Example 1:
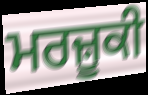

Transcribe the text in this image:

ਮਰਜ਼ੂਕੀ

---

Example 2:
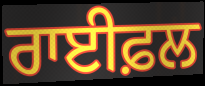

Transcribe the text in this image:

ਰਾਈਫ਼ਲ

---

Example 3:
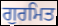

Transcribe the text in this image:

ਗੁਰਮਿਤ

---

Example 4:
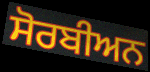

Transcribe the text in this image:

ਸੋਰਬੀਅਨ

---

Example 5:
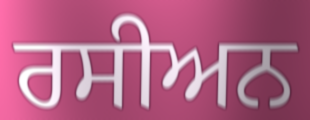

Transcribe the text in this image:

ਰਸੀਅਨ